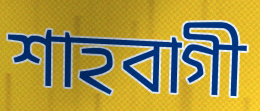
শাহবাগী